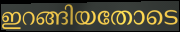
ഇറങ്ങിയതോടെ